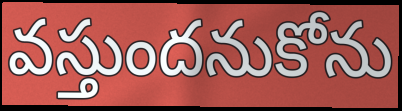
వస్తుందనుకోను